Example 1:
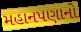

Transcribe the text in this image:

મહાનપણાનો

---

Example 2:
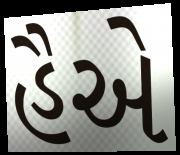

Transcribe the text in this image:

હૈએ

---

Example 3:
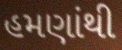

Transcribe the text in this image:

હમણાંથી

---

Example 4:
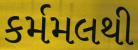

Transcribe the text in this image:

કર્મમલથી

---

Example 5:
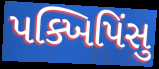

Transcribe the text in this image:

પક્ખિપિંસુ